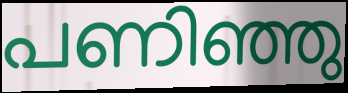
പണിഞ്ഞു